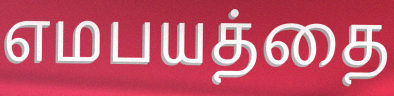
எமபயத்தை